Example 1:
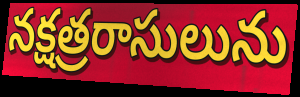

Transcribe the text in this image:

నక్షత్రరాసులును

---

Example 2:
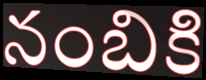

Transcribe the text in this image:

నంబికి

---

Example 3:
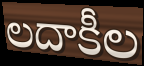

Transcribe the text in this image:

లదాకీల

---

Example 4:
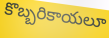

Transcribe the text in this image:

కొబ్బరికాయలూ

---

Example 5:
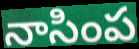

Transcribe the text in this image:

నాసింప